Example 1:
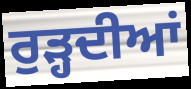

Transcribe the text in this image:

ਰੁੜ੍ਹਦੀਆਂ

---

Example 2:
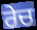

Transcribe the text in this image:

ਰੇਚ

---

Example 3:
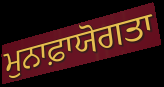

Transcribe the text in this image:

ਮੁਨਾਫ਼ਾਯੋਗਤਾ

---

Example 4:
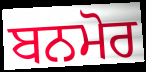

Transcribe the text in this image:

ਬਨਮੋਰ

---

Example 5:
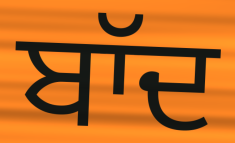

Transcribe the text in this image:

ਬਾੱਦ